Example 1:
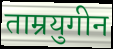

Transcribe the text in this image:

ताम्रयुगीन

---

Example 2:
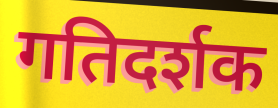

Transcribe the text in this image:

गतिदर्शक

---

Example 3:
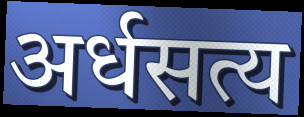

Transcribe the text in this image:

अर्धसत्य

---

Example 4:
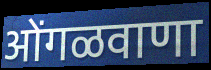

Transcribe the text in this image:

ओंगळवाणा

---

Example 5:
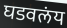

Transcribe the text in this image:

घडवलंय